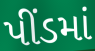
પીંડમાં